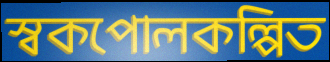
স্বকপোলকল্পিত